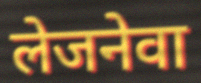
लेजनेवा